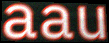
aau